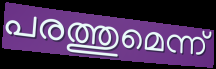
പരത്തുമെന്ന്